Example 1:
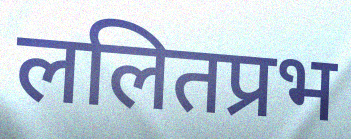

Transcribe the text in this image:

ललितप्रभ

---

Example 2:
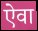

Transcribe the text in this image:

ऐवा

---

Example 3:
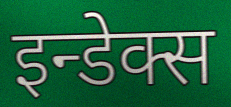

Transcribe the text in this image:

इन्डेक्स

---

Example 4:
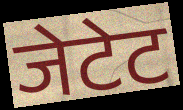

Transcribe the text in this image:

जेटेट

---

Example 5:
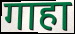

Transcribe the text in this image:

गाहा